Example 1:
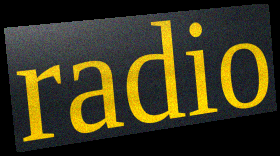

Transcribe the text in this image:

radio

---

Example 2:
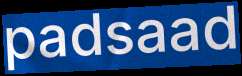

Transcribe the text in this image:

padsaad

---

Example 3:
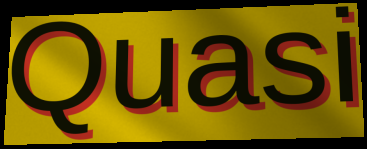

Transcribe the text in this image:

Quasi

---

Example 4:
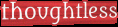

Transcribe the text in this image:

thoughtless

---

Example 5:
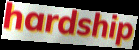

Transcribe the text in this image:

hardship